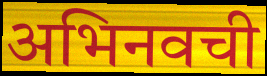
अभिनवची